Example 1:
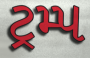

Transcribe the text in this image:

ટ્રમ્પ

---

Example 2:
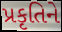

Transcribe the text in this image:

પ્રકૃતિને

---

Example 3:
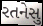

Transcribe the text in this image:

રતનેસુ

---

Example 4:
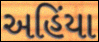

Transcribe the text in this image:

અહિંયા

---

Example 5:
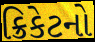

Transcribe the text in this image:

ક્રિકેટનો